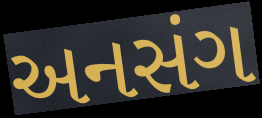
અનસંગ